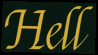
Hell